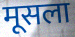
मूसला